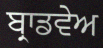
ਬ੍ਰਾਡਵੇਅ